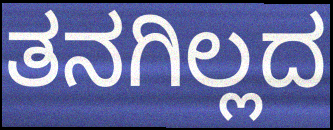
ತನಗಿಲ್ಲದ